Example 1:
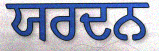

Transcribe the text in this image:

ਯਰਦਨ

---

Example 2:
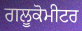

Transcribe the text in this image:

ਗਲੂਕੋਮੀਟਰ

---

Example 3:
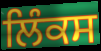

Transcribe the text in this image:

ਲਿੰਕਸ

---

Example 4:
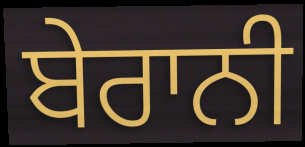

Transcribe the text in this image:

ਬੇਰਾਨੀ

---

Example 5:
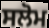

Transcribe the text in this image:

ਸਲੋਮ